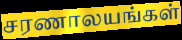
சரணாலயங்கள்